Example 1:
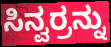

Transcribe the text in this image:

ಸಿನ್ವರ್ರನ್ನು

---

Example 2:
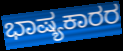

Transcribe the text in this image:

ಭಾಷ್ಯಕಾರರ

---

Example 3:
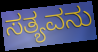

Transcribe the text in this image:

ಸತ್ಯವನು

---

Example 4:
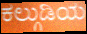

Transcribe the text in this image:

ಕಲ್ಗುಡಿಯ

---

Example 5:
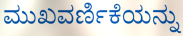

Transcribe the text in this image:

ಮುಖವರ್ಣಿಕೆಯನ್ನು